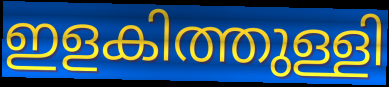
ഇളകിത്തുള്ളി